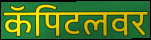
कॅपिटलवर